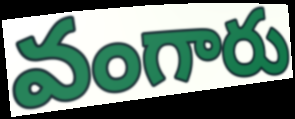
వంగారు